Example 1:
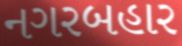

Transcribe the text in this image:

નગરબહાર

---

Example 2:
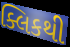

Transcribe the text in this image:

ક્લિકથી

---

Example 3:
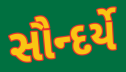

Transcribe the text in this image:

સૌન્દર્યે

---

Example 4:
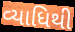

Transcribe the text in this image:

વ્યાધિથી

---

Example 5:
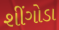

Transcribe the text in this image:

શીંગોડા